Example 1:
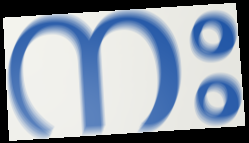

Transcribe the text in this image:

നഃ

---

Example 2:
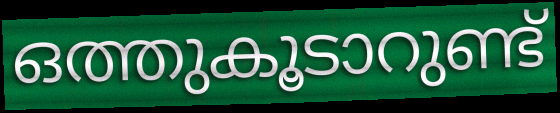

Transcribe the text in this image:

ഒത്തുകൂടാറുണ്ട്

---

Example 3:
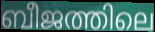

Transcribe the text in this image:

ബീജത്തിലെ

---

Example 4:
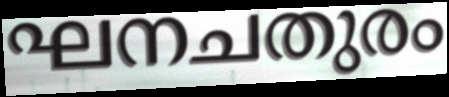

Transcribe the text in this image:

ഘനചതുരം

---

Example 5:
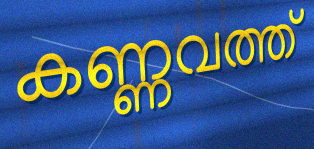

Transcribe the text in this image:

കണ്ണവത്ത്